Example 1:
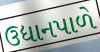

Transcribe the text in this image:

ઉદ્યાનપાળે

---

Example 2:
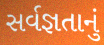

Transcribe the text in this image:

સર્વજ્ઞતાનું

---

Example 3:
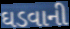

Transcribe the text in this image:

ઘડવાની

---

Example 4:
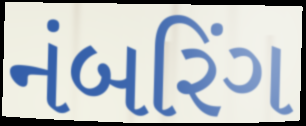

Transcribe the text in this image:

નંબરિંગ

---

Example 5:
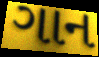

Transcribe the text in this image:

ગાન